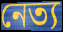
নেত্য